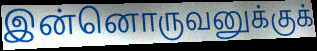
இன்னொருவனுக்குக்